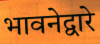
भावनेद्वारे